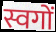
स्वगों